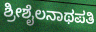
ಶ್ರೀಶೈಲನಾಥಪತಿ